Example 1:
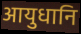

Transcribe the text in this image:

आयुधानि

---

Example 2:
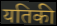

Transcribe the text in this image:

यतिकी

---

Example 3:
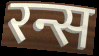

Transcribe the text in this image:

रन्स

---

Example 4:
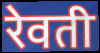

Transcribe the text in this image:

रेवती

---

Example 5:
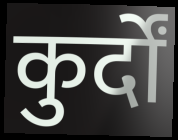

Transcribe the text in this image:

कुर्दों